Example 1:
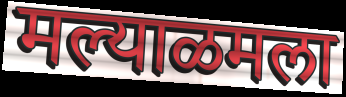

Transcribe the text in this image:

मल्याळमला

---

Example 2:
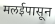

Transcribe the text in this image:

मलईपासून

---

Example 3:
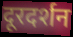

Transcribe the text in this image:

दूरदर्शन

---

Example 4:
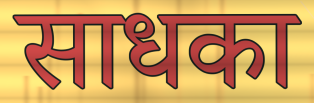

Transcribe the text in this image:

साधका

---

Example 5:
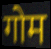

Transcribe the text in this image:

गोम